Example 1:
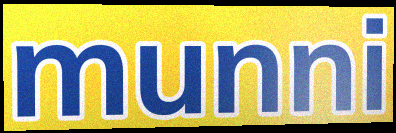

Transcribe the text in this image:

munni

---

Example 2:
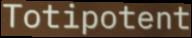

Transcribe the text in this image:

Totipotent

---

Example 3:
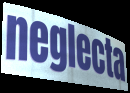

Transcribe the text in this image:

neglecta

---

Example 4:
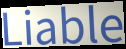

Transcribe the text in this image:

Liable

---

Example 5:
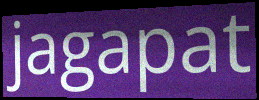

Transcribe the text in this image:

jagapat